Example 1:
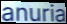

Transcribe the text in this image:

anuria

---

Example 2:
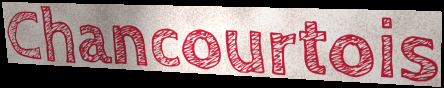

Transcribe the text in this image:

Chancourtois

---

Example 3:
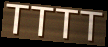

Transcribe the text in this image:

TTTT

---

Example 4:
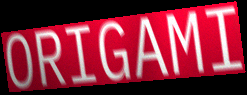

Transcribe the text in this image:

ORIGAMI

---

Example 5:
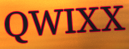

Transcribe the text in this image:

QWIXX